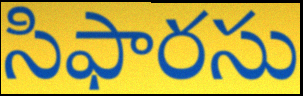
సిఫారసు